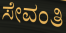
ಸೇವಂತಿ